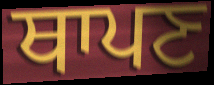
ਥਾਪਣ